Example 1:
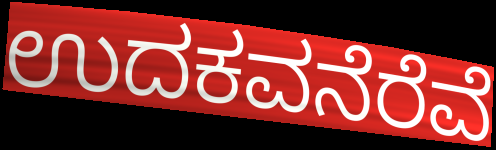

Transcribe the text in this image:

ಉದಕವನೆರೆವೆ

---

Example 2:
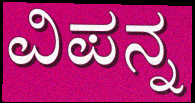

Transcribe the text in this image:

ವಿಪನ್ನ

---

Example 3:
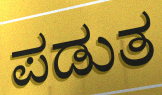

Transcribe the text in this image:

ಪಡುತ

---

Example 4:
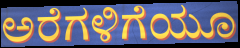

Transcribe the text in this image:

ಅರೆಗಳಿಗೆಯೂ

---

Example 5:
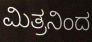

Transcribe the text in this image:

ಮಿತ್ರನಿಂದ